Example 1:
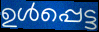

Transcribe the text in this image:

ഉൾപ്പെട്ട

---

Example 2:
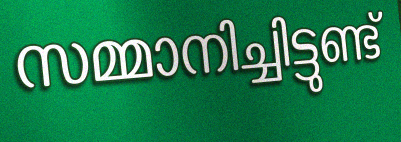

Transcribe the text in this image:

സമ്മാനിച്ചിട്ടുണ്ട്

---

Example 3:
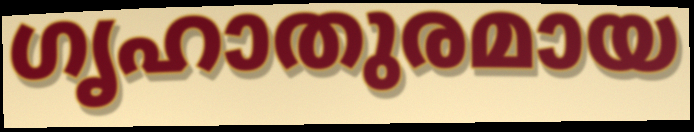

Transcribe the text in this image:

ഗൃഹാതുരമായ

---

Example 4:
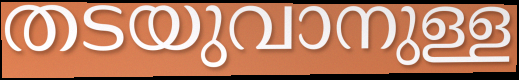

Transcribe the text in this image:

തടയുവാനുള്ള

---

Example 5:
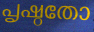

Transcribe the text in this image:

പൃഷ്ഠതോ